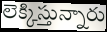
లెక్కిస్తున్నారు